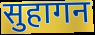
सुहागन